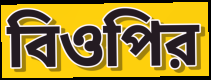
বিওপির